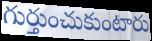
గుర్తుంచుకుంటారు